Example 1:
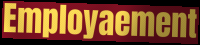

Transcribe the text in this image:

Employaement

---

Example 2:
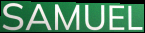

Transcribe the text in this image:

SAMUEL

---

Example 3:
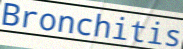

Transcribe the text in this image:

Bronchitis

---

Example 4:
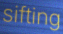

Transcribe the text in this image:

sifting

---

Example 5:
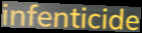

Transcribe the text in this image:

infenticide